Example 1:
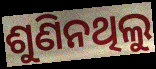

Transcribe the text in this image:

ଶୁଣିନଥିଲୁ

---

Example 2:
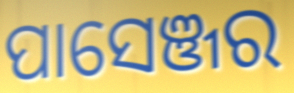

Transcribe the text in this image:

ପାସେଞ୍ଜର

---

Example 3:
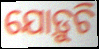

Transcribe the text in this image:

ଯୋଡ଼ୁଚି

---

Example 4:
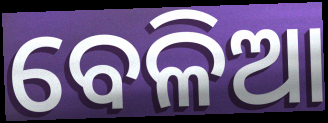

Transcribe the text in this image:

ବେଳିଆ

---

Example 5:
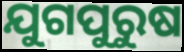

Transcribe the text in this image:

ଯୁଗପୁରୁଷ